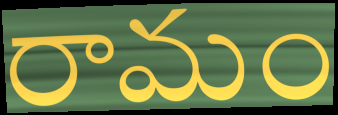
రామం